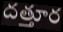
దత్తూర